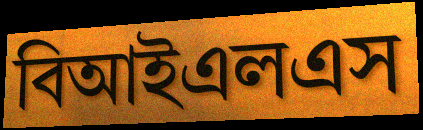
বিআইএলএস